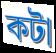
কটা